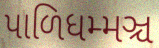
પાળિધમ્મઞ્ચ